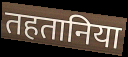
तहतानिया